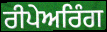
ਰੀਪੇਅਰਿੰਗ